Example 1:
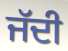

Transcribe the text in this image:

ਜੱਦੀ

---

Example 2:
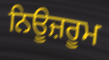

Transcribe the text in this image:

ਨਿਊਜ਼ਰੂਮ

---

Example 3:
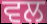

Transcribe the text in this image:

ਵਲ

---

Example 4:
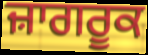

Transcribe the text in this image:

ਜ਼ਾਗਰੂਕ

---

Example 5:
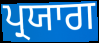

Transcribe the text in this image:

ਪ੍ਰਯਾਗ